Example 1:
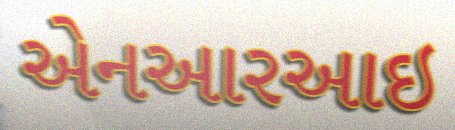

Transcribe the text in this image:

એનઆરઆઇ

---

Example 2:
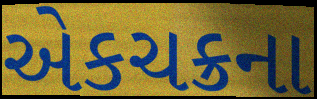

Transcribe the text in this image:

એકચક્રના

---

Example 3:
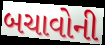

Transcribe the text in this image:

બચાવોની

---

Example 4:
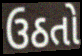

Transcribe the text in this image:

ઉઠતો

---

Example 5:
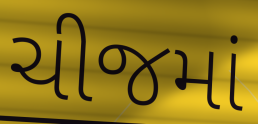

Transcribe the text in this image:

ચીજમાં